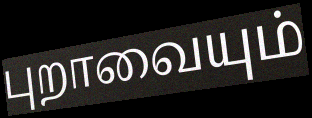
புறாவையும்